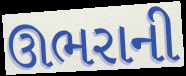
ઊભરાની